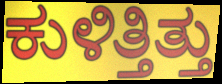
ಕುಳಿತ್ತಿತ್ತು